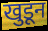
खुडून